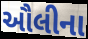
ઔલીના